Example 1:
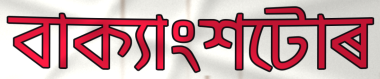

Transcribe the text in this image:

বাক্যাংশটোৰ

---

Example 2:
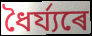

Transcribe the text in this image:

ধৈৰ্য্যৰে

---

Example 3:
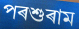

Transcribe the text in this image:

পৰশুৰাম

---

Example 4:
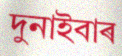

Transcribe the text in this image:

দুনাইবাৰ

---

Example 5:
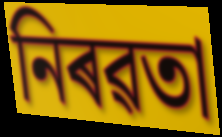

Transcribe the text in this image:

নিৰৱতা